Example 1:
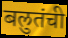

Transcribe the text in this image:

बलुतंची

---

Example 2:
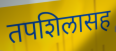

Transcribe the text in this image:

तपशिलासह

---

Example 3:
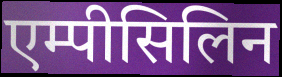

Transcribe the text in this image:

एम्पीसिलिन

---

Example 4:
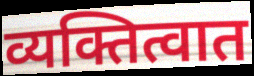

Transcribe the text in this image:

व्यक्तित्वात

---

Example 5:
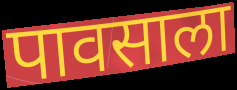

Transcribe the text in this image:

पावसाला